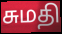
சுமதி